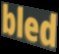
bled